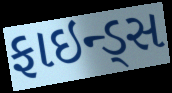
ફાઇન્ડ્સ